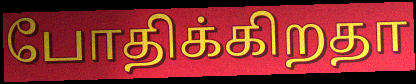
போதிக்கிறதா